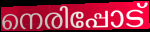
നെരിപ്പോട്